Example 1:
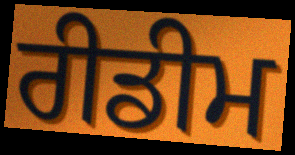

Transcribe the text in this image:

ਰੀਡੀਮ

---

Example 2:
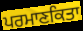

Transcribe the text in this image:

ਪਰਮਾਣਕਿਤਾ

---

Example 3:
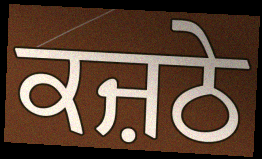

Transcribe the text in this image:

ਕਜ਼ਠੇ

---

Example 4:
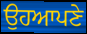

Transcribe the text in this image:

ਉਹਆਪਣੇ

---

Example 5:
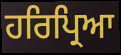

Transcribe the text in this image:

ਹਰਿਪ੍ਰਿਆ